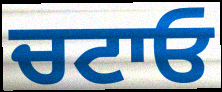
ਚਟਾਓ